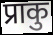
प्राकु